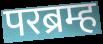
परब्रम्ह